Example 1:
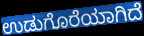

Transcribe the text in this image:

ಉಡುಗೊರೆಯಾಗಿದೆ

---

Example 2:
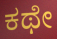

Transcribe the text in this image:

ಕಥೇ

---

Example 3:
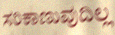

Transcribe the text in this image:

ಸರಿಕಾಣುವುದಿಲ್ಲ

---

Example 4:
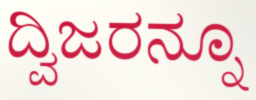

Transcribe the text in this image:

ದ್ವಿಜರನ್ನೂ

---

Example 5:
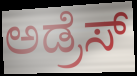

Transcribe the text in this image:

ಅಡ್ರೆಸ್